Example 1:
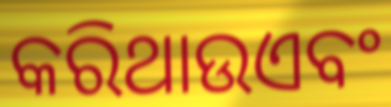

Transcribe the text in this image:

କରିଥାଉଏବଂ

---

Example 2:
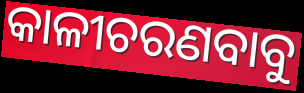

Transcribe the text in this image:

କାଳୀଚରଣବାବୁ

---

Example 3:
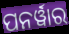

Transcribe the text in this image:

ପନର୍ୱାର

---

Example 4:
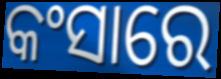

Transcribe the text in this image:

କଂସାରେ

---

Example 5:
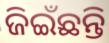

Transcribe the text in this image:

ଜିଇଁଛନ୍ତି